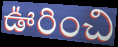
ఊరించి